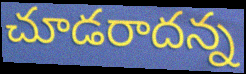
చూడరాదన్న